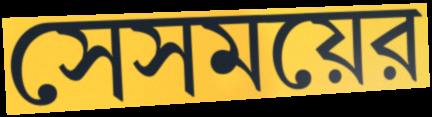
সেসময়ের